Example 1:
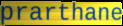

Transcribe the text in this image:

prarthane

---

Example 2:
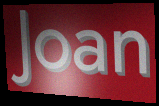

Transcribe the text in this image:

Joan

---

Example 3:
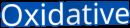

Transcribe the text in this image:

Oxidative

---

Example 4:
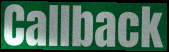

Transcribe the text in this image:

Callback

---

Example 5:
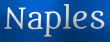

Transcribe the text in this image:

Naples